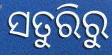
ସତୁରିରୁ